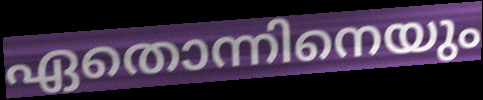
ഏതൊന്നിനെയും